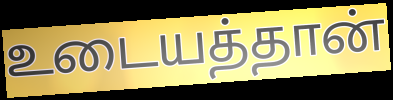
உடையத்தான்